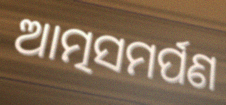
ଆତ୍ମସମର୍ପଣ